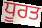
ਧੂਰਤ